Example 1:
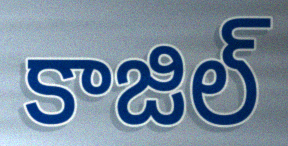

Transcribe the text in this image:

కాజిల్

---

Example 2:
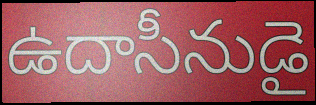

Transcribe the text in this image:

ఉదాసీనుడై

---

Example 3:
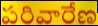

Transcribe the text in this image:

పరివారేణ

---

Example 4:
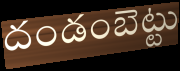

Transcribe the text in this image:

దండంబెట్టు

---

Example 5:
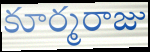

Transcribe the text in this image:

కూర్మరాజు